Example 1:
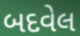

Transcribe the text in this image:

બદવેલ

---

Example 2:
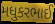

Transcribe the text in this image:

મધુકરભાઈ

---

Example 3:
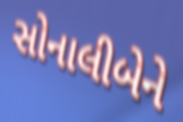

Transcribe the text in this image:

સોનાલીબેને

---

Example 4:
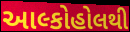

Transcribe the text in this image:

આલ્કોહોલથી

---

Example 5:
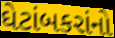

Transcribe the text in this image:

ઘેટાંબકરાંનો